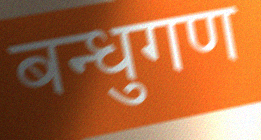
बन्धुगण